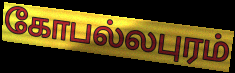
கோபல்லபுரம்